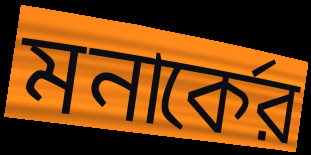
মনার্কের